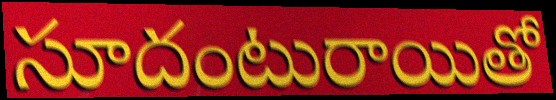
సూదంటురాయితో